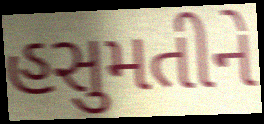
હસુમતીને